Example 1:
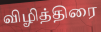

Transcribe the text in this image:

விழித்திரை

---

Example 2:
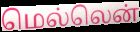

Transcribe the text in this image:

மெல்லென்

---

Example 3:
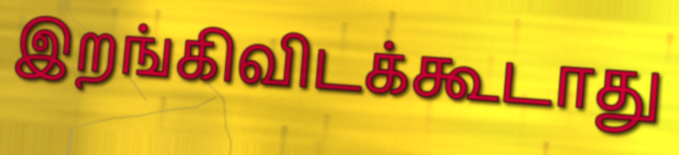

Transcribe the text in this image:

இறங்கிவிடக்கூடாது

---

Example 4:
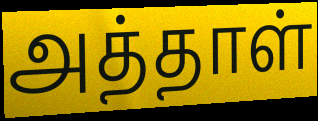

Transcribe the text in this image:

அத்தாள்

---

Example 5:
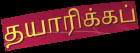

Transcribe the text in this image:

தயாரிக்கப்